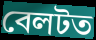
বেলটত